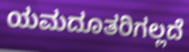
ಯಮದೂತರಿಗಲ್ಲದೆ